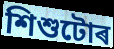
শিশুটোৰ